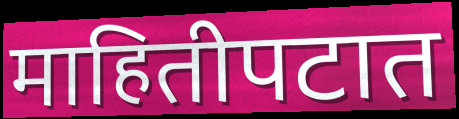
माहितीपटात